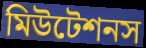
মিউটেশনস